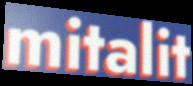
mitalit